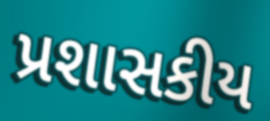
પ્રશાસકીય